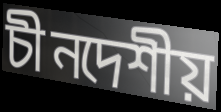
চীনদেশীয়